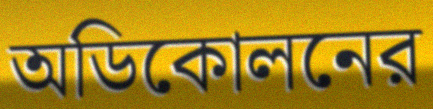
অডিকোলনের